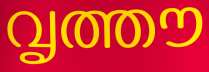
വൃത്തൗ